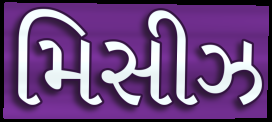
મિસીઝ